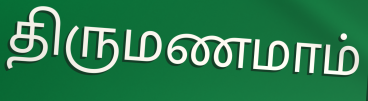
திருமணமாம்